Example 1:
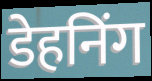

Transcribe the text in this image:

डेहनिंग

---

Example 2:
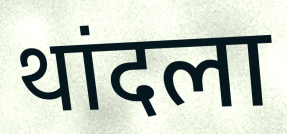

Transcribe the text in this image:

थांदला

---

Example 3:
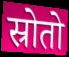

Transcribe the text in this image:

स्रोतो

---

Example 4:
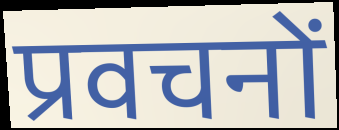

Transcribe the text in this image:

प्रवचनों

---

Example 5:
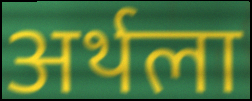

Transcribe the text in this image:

अर्थला